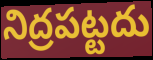
నిద్రపట్టదు